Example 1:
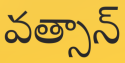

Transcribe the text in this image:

వత్సాన్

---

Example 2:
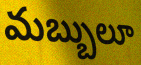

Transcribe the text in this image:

మబ్బులూ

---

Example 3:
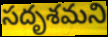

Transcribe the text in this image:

సదృశమని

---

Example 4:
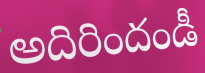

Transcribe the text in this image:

అదిరిందండీ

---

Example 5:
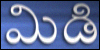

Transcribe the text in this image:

మిడి